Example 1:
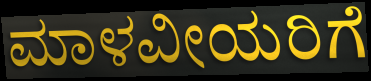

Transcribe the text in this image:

ಮಾಳವೀಯರಿಗೆ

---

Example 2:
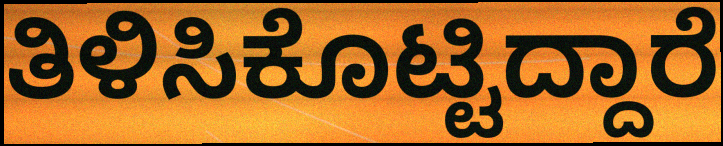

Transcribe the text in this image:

ತಿಳಿಸಿಕೊಟ್ಟಿದ್ದಾರೆ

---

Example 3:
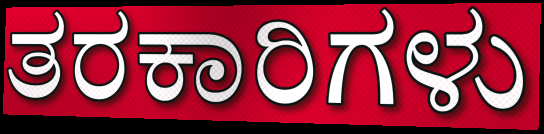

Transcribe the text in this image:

ತರಕಾರಿಗಳು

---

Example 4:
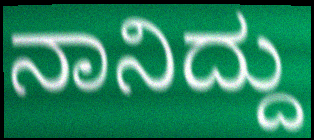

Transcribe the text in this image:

ನಾನಿದ್ದು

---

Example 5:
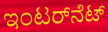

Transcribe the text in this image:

ಇಂಟರ್‌ನೆಟ್